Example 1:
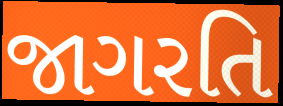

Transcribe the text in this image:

જાગરતિ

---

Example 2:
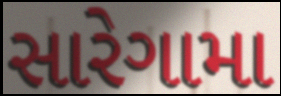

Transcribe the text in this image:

સારેગામા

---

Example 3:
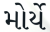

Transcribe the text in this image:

મોર્યે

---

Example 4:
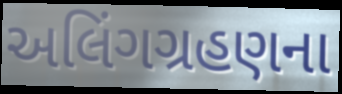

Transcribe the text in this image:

અલિંગગ્રહણના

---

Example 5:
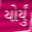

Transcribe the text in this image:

યોર્યું